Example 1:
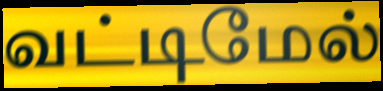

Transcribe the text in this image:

வட்டிமேல்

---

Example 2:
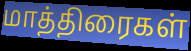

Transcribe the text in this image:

மாத்திரைகள்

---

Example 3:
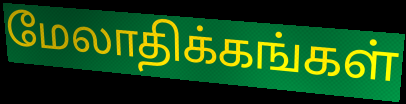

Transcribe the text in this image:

மேலாதிக்கங்கள்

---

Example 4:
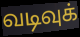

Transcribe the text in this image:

வடிவுக்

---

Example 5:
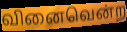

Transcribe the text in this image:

வினைவென்ற